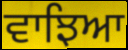
ਵਾਝਿਆ